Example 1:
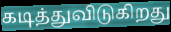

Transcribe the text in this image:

கடித்துவிடுகிறது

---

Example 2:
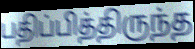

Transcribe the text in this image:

பதிப்பித்திருந்த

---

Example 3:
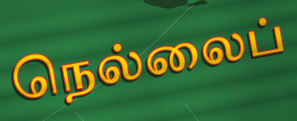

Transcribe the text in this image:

நெல்லைப்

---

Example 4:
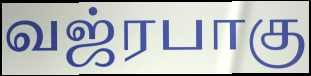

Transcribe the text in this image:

வஜ்ரபாகு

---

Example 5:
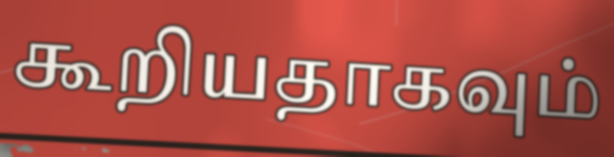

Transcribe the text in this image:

கூறியதாகவும்